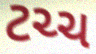
ટચ્ચ